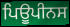
ਪਿਊਪੀਨਸ